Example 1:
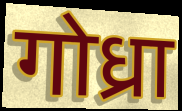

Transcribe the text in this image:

गोध्रा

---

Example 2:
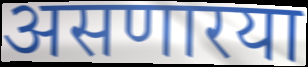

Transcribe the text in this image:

असणारया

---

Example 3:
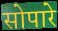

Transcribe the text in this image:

सोपारे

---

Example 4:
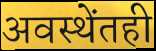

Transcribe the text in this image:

अवस्थेंतही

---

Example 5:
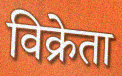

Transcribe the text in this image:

विक्रेता